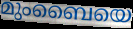
മുംബൈയെ